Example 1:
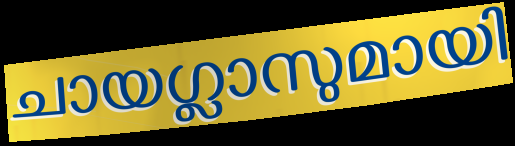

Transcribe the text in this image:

ചായഗ്ലാസുമായി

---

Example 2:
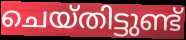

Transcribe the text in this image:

ചെയ്തിട്ടുണ്ട്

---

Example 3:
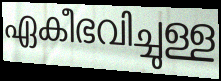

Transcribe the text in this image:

ഏകീഭവിച്ചുള്ള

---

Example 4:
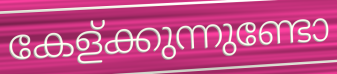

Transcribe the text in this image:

കേള്ക്കുന്നുണ്ടോ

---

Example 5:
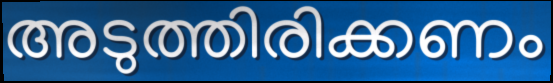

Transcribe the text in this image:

അടുത്തിരിക്കണം